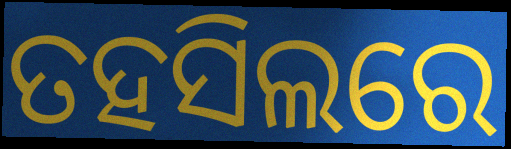
ତହସିଲରେ